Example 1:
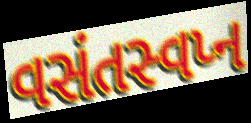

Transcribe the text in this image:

વસંતસ્વપ્ન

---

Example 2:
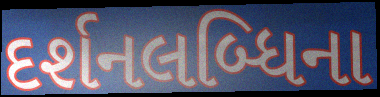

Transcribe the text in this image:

દર્શનલબ્ધિના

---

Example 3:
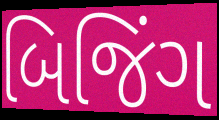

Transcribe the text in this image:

બિજિંગ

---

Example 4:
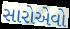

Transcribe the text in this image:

સારોએવો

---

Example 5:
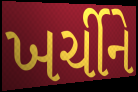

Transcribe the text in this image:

ખર્ચીને